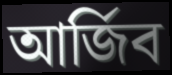
আৰ্জিব